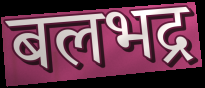
बलभद्र